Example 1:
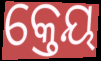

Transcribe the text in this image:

କ୍ତେୟ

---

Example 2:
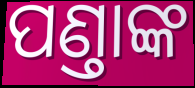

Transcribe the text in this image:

ପଣ୍ତାଙ୍କ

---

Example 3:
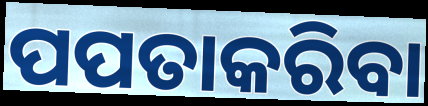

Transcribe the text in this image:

ପପତାକରିବା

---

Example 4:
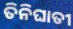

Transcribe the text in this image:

ତିନିଘାତୀ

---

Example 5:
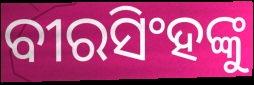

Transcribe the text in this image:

ବୀରସିଂହଙ୍କୁ